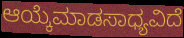
ಆಯ್ಕೆಮಾಡಸಾಧ್ಯವಿದೆ